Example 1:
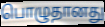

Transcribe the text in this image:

பொழுதானது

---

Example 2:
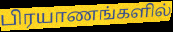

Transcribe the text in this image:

பிரயாணங்களில்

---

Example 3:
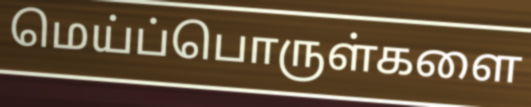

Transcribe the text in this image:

மெய்ப்பொருள்களை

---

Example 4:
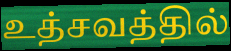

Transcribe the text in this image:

உத்சவத்தில்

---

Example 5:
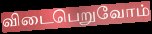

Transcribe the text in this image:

விடைபெறுவோம்